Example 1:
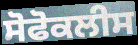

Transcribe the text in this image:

ਸੋਫੋਕਲੀਸ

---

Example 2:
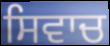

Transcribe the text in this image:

ਸਿਵਾਚ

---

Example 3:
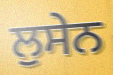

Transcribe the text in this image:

ਲੁਸੇਨ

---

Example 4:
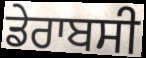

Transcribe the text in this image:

ਡੇਰਾਬਸੀ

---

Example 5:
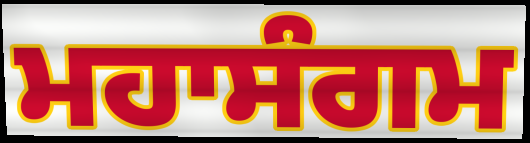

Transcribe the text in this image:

ਮਹਾਸੰਗਮ